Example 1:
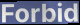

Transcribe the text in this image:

Forbid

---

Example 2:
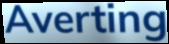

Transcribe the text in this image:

Averting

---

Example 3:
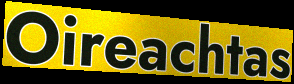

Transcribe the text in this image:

Oireachtas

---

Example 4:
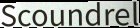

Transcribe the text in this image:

Scoundrel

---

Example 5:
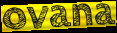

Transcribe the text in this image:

ovana